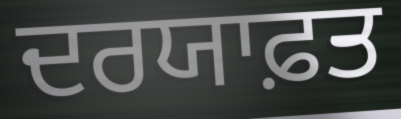
ਦਰਯਾਫ਼ਤ